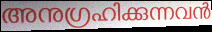
അനുഗ്രഹിക്കുന്നവൻ